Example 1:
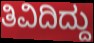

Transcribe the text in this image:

ತಿವಿದಿದ್ದು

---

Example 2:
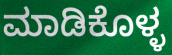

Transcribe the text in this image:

ಮಾಡಿಕೊಳ್ಳ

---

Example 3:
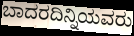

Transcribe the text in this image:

ಬಾದರದಿನ್ನಿಯವರು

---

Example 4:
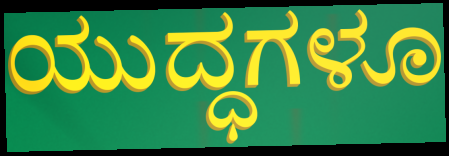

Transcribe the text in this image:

ಯುದ್ಧಗಳೂ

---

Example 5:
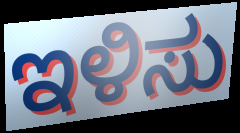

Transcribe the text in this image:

ಇಳಿಸು